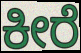
ಕೀರೆ